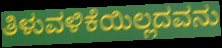
ತಿಳುವಳಿಕೆಯಿಲ್ಲದವನು